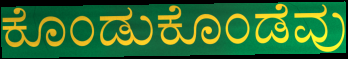
ಕೊಂಡುಕೊಂಡೆವು